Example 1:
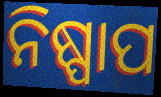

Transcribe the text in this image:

ନିଷ୍ପାପ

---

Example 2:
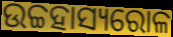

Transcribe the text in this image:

ଉଚ୍ଚହାସ୍ୟରୋଳ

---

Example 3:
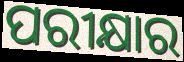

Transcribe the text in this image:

ପରୀକ୍ଷାର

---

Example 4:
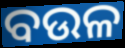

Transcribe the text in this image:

ବଉଳ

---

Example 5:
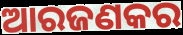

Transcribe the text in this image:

ଆରଜଣକର